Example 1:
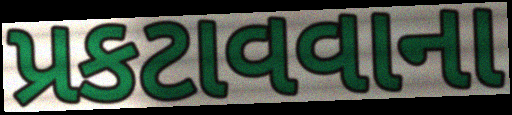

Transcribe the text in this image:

પ્રકટાવવાના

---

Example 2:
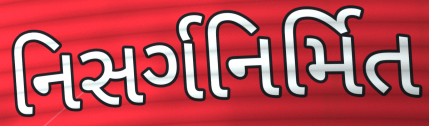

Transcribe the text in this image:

નિસર્ગનિર્મિત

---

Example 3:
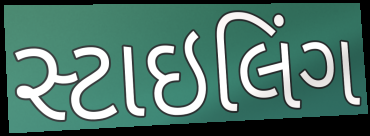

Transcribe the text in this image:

સ્ટાઇલિંગ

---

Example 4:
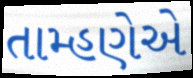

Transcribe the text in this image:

તામ્હણેએ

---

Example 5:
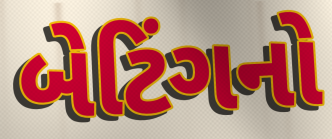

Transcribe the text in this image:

બેટિંગનો